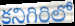
కనిగిరిలో